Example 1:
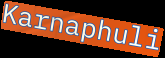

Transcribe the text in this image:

Karnaphuli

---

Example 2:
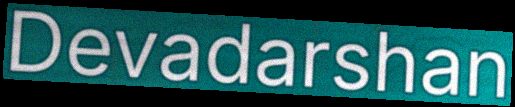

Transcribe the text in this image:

Devadarshan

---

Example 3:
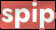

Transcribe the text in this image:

spip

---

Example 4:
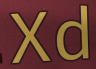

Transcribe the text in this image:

Xd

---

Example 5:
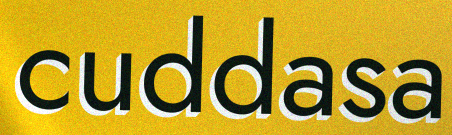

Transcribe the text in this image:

cuddasa